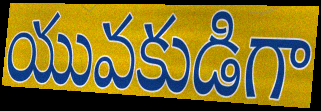
యువకుడిగా